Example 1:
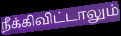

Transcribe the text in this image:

நீக்கிவிட்டாலும்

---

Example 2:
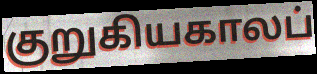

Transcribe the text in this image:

குறுகியகாலப்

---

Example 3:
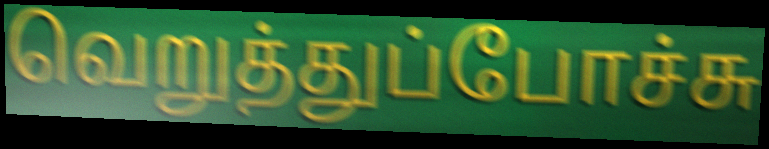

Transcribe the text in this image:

வெறுத்துப்போச்சு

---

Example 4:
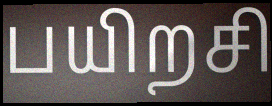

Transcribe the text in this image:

பயிறசி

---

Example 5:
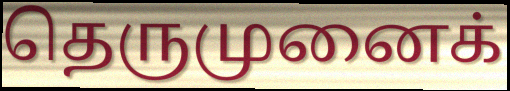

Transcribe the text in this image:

தெருமுனைக்